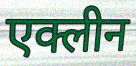
एक्लीन